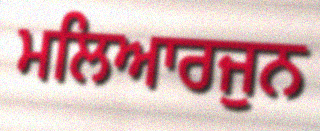
ਮਲਿਆਰਜੁਨ